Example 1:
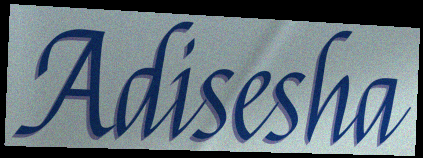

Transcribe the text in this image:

Adisesha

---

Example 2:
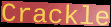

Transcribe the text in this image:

Crackle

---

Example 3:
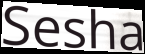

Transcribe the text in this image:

Sesha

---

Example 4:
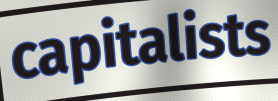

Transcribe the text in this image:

capitalists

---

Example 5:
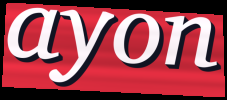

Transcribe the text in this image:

ayon